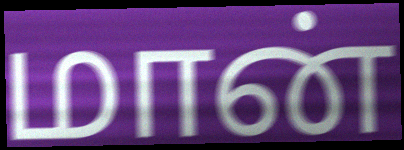
மான்